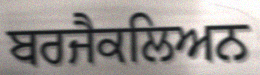
ਬਰਜੈਕਲਿਅਨ